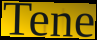
Tene